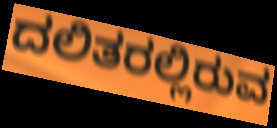
ದಲಿತರಲ್ಲಿರುವ